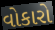
વોકારો